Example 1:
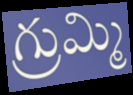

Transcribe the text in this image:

గ్రుమ్మి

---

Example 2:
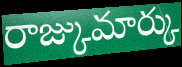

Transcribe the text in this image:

రాజ్కుమార్కు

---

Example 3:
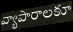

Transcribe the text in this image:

వ్యాపారాలకూ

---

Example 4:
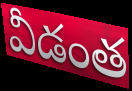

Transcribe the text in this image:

వీడంత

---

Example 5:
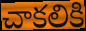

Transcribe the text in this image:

చాకలికి